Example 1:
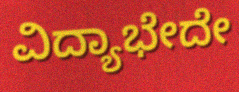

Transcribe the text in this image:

ವಿದ್ಯಾಭೇದೇ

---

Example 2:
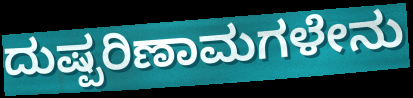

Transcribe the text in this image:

ದುಷ್ಪರಿಣಾಮಗಳೇನು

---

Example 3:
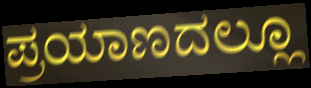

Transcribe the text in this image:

ಪ್ರಯಾಣದಲ್ಲೂ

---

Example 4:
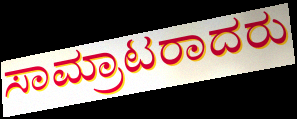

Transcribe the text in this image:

ಸಾಮ್ರಾಟರಾದರು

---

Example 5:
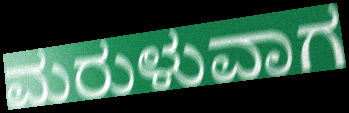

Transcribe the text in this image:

ಮರುಳುವಾಗ